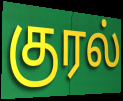
குரல்